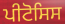
ਪੀਟੋਸਿਸ